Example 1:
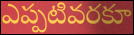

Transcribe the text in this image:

ఎప్పటివరకూ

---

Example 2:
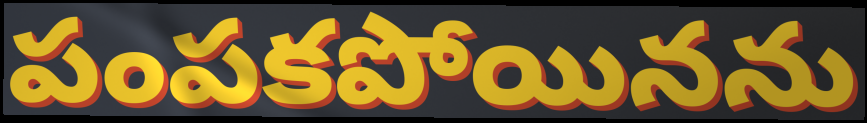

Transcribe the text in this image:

పంపకపోయినను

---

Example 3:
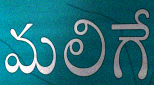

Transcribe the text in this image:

మలిగే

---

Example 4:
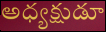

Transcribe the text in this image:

అధ్యక్షుడూ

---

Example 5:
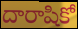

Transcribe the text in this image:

దారాషికో